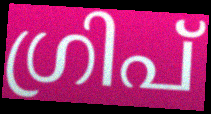
ഗ്രിപ്